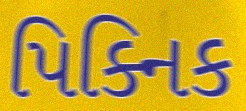
પિક્નિક